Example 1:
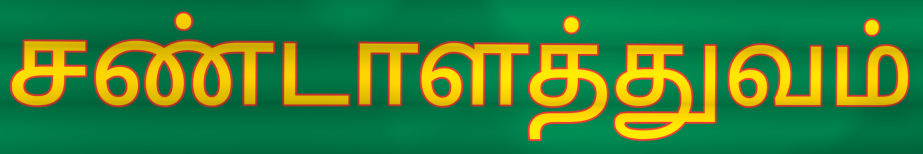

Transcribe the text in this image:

சண்டாளத்துவம்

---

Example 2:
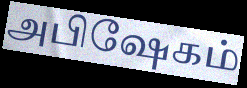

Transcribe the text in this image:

அபிஷேகம்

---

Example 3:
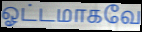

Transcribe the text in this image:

ஓட்டமாகவே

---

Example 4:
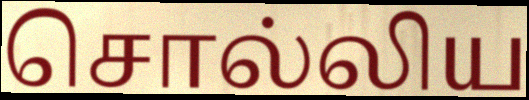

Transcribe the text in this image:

சொல்லிய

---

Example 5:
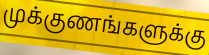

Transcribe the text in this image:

முக்குணங்களுக்கு